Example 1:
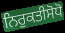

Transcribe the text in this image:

ਨਿਰੁਕਤੀਸੋਧੋ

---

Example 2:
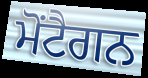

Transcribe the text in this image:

ਮੋਂਟੈਗਨ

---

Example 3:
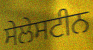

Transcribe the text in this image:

ਸੇਲੇਸਟੀਨ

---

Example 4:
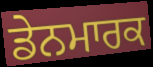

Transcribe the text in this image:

ਡੇਨਮਾਰਕ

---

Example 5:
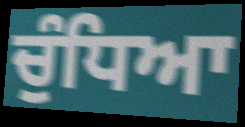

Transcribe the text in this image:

ਚੁੰਧਿਆ